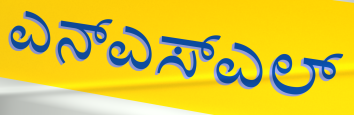
ಎನ್ಎಸ್ಎಲ್